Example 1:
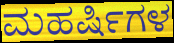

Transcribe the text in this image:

ಮಹರ್ಷಿಗಳ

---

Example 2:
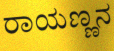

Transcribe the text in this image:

ರಾಯಣ್ಣನ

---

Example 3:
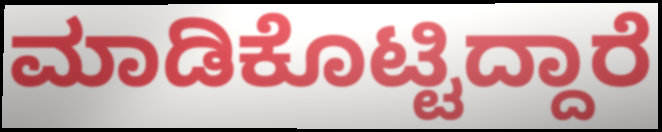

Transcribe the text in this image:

ಮಾಡಿಕೊಟ್ಟಿದ್ದಾರೆ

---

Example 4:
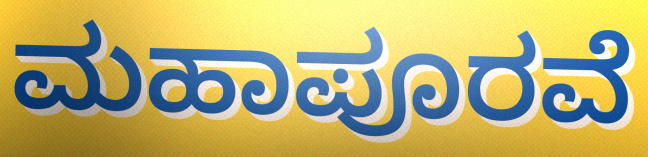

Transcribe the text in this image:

ಮಹಾಪೂರವೆ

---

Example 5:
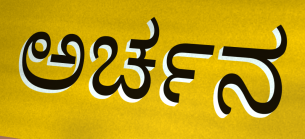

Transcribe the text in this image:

ಅರ್ಚನ